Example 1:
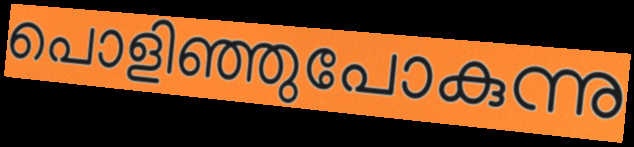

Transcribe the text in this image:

പൊളിഞ്ഞുപോകുന്നു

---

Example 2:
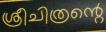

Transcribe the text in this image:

ശ്രീചിത്രന്റെ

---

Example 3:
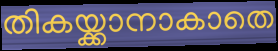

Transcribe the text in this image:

തികയ്ക്കാനാകാതെ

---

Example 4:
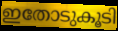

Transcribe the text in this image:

ഇതോടുകൂടി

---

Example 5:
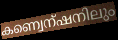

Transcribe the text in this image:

കണ്വെന്ഷനിലും